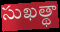
సుఖత్థా